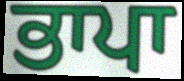
ਭਾਪਾ